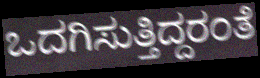
ಒದಗಿಸುತ್ತಿದ್ದರಂತೆ